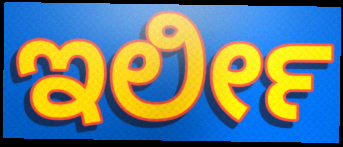
ಇರ್ಲೀ